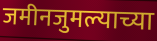
जमीनजुमल्याच्या